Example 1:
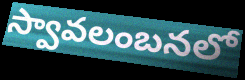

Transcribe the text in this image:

స్వావలంబనలో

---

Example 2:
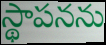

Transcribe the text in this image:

స్థాపనను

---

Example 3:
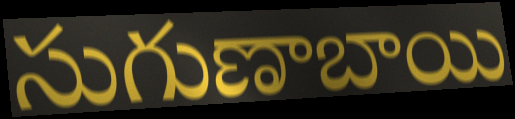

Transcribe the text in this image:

సుగుణాబాయి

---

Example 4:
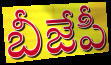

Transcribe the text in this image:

బీజేపీ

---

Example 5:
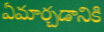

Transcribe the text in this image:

ఏమార్చడానికి